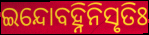
ଇନ୍ଦୋବହ୍ନିନିସୃତିଃ